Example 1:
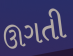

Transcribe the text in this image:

ઊગતી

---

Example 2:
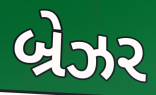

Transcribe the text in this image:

બ્રેઝર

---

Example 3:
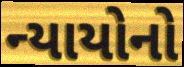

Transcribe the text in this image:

ન્યાયોનો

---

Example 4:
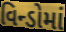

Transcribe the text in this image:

વિન્ડોમાં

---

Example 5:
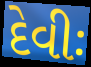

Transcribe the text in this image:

દેવીઃ